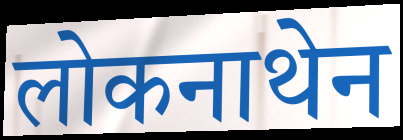
लोकनाथेन